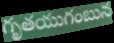
గృతయుగంబున